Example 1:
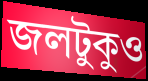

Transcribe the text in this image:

জলটুকুও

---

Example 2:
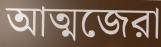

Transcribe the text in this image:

আত্মজেরা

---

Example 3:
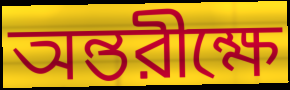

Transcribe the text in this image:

অন্তরীক্ষে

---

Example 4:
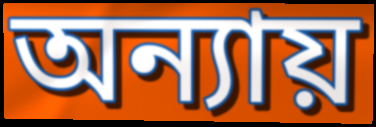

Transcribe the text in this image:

অন্যায়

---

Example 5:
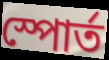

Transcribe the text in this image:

স্পোর্ত